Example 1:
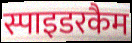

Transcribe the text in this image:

स्पाइडरकैम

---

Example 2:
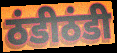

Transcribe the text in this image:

ठंडीठंडी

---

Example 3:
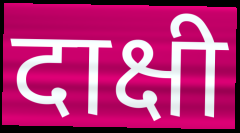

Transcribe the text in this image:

दाक्षी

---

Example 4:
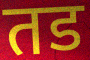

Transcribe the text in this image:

तड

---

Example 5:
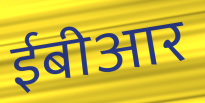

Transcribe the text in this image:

ईबीआर